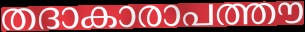
തദാകാരാപത്തൗ